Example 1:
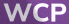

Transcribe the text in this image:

WCP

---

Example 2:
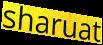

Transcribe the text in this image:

sharuat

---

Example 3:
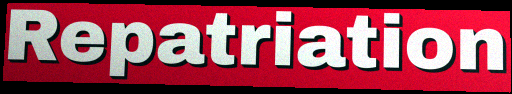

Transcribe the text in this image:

Repatriation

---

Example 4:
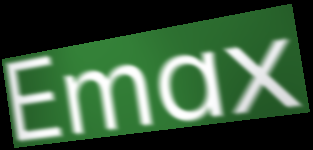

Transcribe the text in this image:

Emax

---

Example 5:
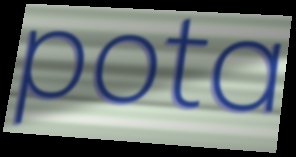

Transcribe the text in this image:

pota